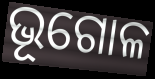
ଭୂଗୋଳ